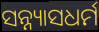
ସନ୍ନ୍ୟାସଧର୍ମ